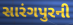
સારંગપુરની